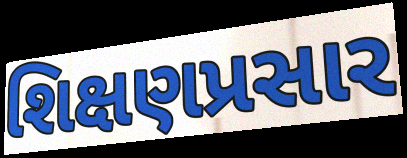
શિક્ષણપ્રસાર